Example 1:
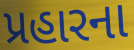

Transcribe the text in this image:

પ્રહારના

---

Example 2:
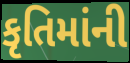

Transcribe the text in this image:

કૃતિમાંની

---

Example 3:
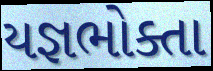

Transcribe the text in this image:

યજ્ઞભોક્તા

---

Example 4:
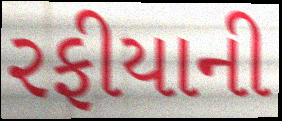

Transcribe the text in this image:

રફીયાની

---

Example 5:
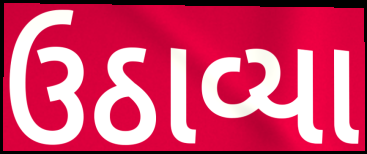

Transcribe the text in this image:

ઉઠાવ્યા